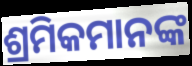
ଶ୍ରମିକମାନଙ୍କ